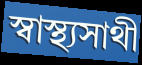
স্বাস্থ্যসাথী